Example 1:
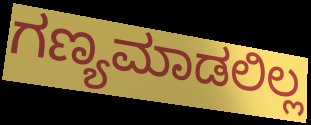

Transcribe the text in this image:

ಗಣ್ಯಮಾಡಲಿಲ್ಲ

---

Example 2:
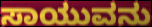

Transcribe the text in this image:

ಸಾಯುವನು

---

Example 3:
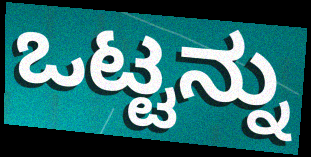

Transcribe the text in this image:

ಒಟ್ಟನ್ನು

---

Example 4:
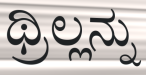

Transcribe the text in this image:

ಥ್ರಿಲ್ಲನ್ನು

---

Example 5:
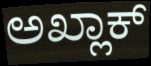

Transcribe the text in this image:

ಅಖ್ಲಾಕ್